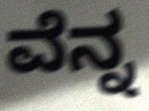
ವೆನ್ನ